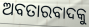
ଅବତାରବାଦକୁ